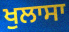
ਖੁਲਾਸਾ